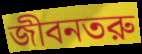
জীবনতরু